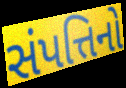
સંપત્તિનો